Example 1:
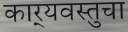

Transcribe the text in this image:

कार्यवस्तुचा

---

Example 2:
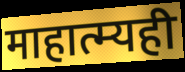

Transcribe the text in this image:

माहात्म्यही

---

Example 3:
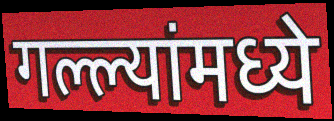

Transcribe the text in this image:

गल्ल्यांमध्ये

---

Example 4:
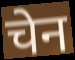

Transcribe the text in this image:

चेन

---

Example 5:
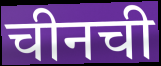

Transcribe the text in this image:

चीनची